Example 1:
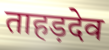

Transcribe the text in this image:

ताहड़देव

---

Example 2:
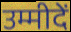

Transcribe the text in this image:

उम्‍मीदें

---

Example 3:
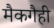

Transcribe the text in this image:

मैकगैही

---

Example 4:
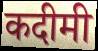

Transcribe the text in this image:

कदीमी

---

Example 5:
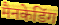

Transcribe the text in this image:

मैनकेडिंग